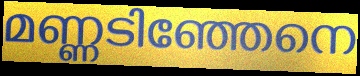
മണ്ണടിഞ്ഞേനെ